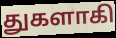
துகளாகி